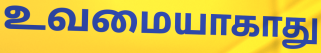
உவமையாகாது